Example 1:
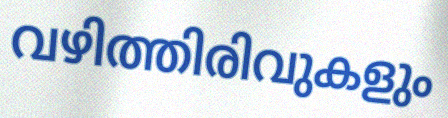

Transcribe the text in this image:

വഴിത്തിരിവുകളും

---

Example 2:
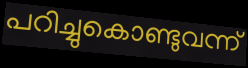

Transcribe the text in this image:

പറിച്ചുകൊണ്ടുവന്ന്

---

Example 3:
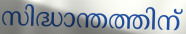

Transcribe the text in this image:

സിദ്ധാന്തത്തിന്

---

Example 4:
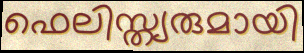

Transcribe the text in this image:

ഫെലിസ്ത്യരുമായി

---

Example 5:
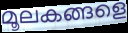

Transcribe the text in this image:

മൂലകങ്ങളെ